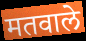
मतवाले